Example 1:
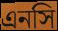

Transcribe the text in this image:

এনসি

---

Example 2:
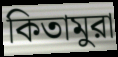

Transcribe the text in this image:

কিতামুরা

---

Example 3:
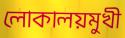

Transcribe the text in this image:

লোকালয়মুখী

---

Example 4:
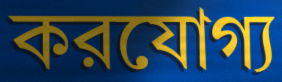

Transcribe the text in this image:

করযোগ্য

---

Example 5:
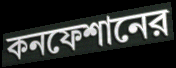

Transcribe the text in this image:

কনফেশানের